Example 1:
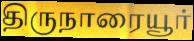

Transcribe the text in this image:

திருநாரையூர்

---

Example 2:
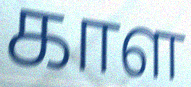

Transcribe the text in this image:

காள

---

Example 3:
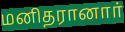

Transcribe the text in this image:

மனிதரானார்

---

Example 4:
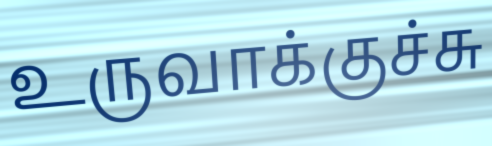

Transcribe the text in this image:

உருவாக்குச்சு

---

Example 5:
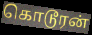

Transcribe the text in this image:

கொடூரன்